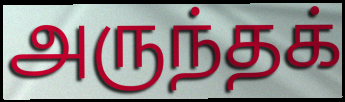
அருந்தக்